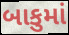
બાકુમાં